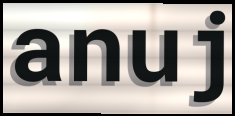
anuj